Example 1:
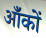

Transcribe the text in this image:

आँकों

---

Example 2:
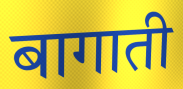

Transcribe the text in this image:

बागाती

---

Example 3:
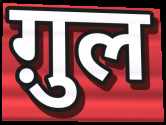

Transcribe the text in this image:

ग़ुल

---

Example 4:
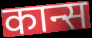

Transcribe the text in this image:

कान्‍स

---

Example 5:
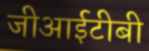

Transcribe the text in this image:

जीआईटीबी